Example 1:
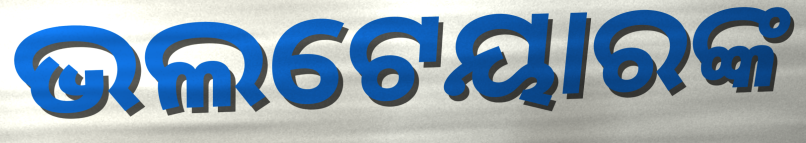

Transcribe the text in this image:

ଭଲଟେୟାରଙ୍କ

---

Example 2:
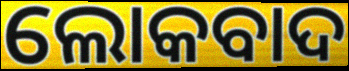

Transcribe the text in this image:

ଲୋକବାଦ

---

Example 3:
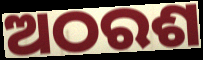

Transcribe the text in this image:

ଅଠରଶ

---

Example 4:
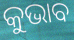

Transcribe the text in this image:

କୁଭାବ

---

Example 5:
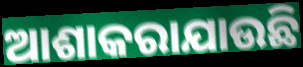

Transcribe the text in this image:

ଆଶାକରାଯାଉଛି